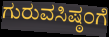
ಗುರುವಸಿಷ್ಠಂಗೆ